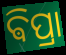
ଵିପ୍ରା